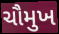
ચૌમુખ